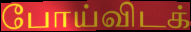
போய்விடக்